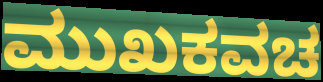
ಮುಖಕವಚ